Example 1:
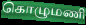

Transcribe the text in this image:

கொழுமணி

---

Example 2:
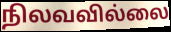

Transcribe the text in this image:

நிலவவில்லை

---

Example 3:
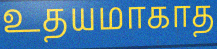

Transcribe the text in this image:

உதயமாகாத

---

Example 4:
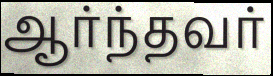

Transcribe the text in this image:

ஆர்ந்தவர்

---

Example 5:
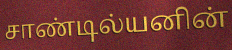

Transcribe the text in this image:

சாண்டில்யனின்